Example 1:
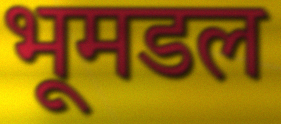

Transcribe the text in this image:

भूमडल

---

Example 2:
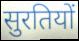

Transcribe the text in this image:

सुरतियों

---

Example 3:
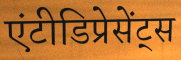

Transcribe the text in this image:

एंटीडिप्रेसेंट्स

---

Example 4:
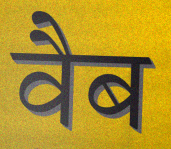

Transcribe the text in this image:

वैब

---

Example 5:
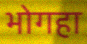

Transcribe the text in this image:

भोगहा